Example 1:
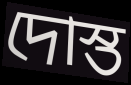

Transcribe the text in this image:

দোস্ত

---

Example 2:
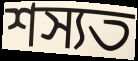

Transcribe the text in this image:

শস্যত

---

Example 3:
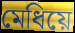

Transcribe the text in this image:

মেধিয়ে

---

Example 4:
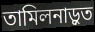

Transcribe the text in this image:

তামিলনাড়ুত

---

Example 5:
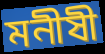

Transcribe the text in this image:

মনীষী